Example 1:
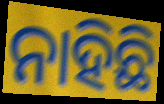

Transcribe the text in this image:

ନାହିଛି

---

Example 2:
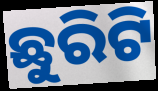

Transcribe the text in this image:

ଛୁରିଟି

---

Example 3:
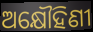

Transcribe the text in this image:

ଅକ୍ଷୌହିଣୀ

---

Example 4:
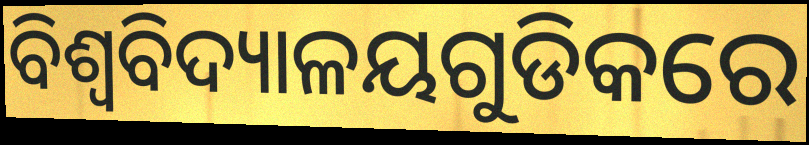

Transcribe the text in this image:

ବିଶ୍ଵବିଦ୍ୟାଳୟଗୁଡିକରେ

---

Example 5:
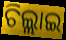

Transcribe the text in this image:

ଚିଲ୍ଲାଇ